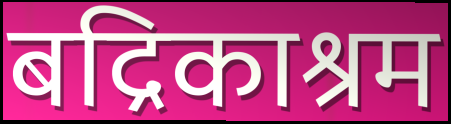
बद्रिकाश्रम